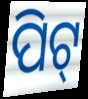
ପିଟ୍